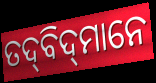
ତଦ୍‌ବିଦ୍‌ମାନେ